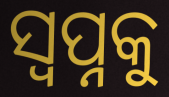
ସ୍ଵପ୍ନକୁ